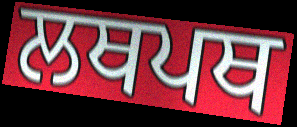
ਲਥਪਥ